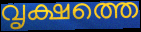
വൃക്ഷത്തെ